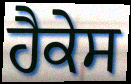
ਹੈਕੇਸ